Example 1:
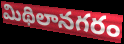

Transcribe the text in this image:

మిథిలానగరం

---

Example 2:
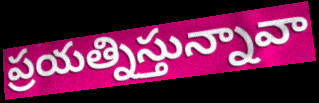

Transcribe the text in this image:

ప్రయత్నిస్తున్నావా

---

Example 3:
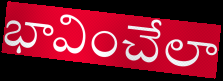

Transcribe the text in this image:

భావించేలా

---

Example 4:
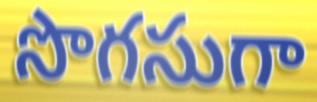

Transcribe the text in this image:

సొగసుగా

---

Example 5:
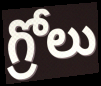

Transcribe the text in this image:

గ్రోలు